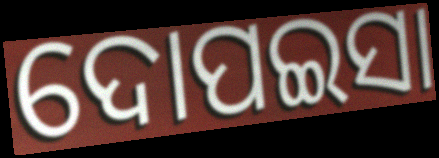
ଦୋପଇସା